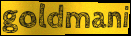
goldmani